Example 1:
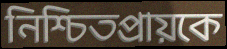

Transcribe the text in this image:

নিশ্চিতপ্রায়কে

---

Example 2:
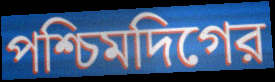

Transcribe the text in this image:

পশ্চিমদিগের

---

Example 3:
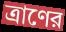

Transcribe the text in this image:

ত্রাণের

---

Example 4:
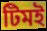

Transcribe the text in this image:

টিমই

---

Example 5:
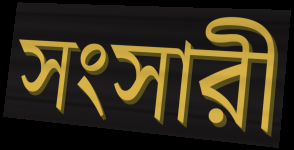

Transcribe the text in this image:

সংসারী